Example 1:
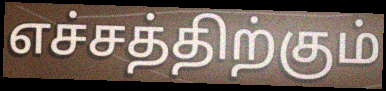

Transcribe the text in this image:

எச்சத்திற்கும்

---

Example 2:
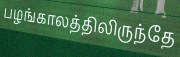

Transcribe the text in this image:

பழங்காலத்திலிருந்தே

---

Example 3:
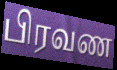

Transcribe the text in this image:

பிரவண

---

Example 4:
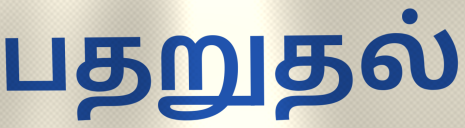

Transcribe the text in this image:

பதறுதல்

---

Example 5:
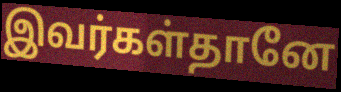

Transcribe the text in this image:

இவர்கள்தானே